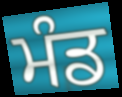
ਮੰਡ